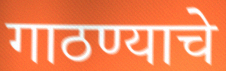
गाठण्याचे